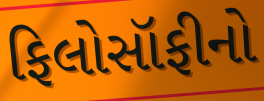
ફિલોસૉફીનો